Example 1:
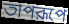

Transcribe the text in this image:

তাপরূপে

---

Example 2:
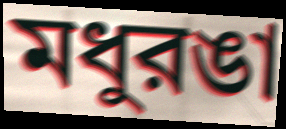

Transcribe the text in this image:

মধুরঙা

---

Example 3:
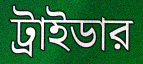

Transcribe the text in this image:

ট্রাইডার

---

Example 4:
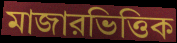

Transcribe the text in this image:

মাজারভিত্তিক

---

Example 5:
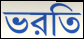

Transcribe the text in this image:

ভরতি